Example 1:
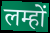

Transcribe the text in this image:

लम्हों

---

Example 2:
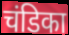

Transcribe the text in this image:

चंडिका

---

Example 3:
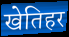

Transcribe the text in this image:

खेतिहर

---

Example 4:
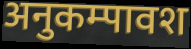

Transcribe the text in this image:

अनुकम्पावश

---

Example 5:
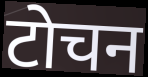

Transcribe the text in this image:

टोचन